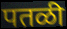
पतळी